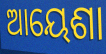
ଆୟେଶା